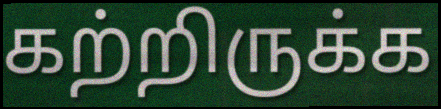
கற்றிருக்க